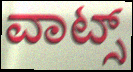
ವಾಟ್ಸ್